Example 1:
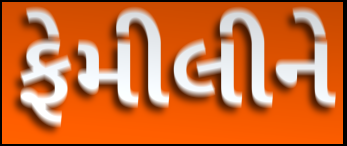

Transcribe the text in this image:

ફેમીલીને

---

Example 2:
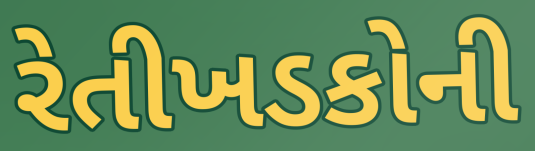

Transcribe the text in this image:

રેતીખડકોની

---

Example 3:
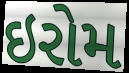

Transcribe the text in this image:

ઇરોમ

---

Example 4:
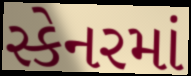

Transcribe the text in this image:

સ્કેનરમાં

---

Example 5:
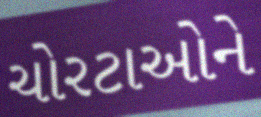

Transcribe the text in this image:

ચોરટાઓને